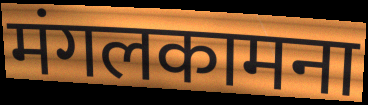
मंगलकामना